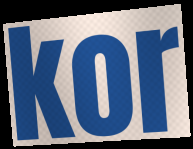
kor